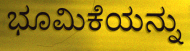
ಭೂಮಿಕೆಯನ್ನು